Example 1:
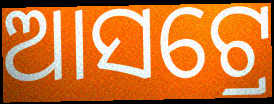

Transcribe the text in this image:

ଆସଟ୍ରେ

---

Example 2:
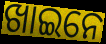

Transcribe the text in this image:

ଖାଇନେ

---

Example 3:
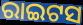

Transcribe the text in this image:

ରାଇଟସ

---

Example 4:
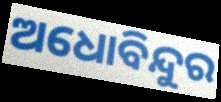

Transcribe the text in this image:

ଅଧୋବିନ୍ଦୁର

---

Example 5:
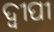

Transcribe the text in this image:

ଦ୍ଵୀପୀ